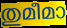
തുമീമാ